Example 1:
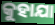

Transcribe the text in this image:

କୁହାଯା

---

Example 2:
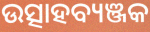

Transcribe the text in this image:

ଉତ୍ସାହବ୍ୟଞ୍ଜକ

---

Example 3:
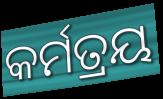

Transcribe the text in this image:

କର୍ମତ୍ରୟ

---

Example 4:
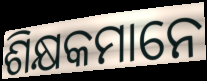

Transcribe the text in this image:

ଶିକ୍ଷକମାନେ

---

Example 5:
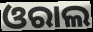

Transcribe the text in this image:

ଓରାଲ